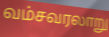
வம்சவரலாறு